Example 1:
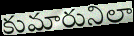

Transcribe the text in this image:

కుమారునిలా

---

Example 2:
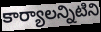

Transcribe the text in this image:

కార్యాలన్నిటిని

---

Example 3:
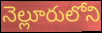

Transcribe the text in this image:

నెల్లూరులోని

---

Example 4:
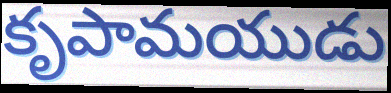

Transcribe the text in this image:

కృపామయుడు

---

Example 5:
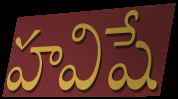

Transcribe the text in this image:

హవిషే